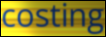
costing